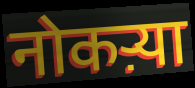
नोकऱ्‍या